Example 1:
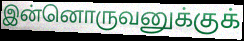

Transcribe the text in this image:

இன்னொருவனுக்குக்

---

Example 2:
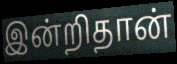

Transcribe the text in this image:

இன்றிதான்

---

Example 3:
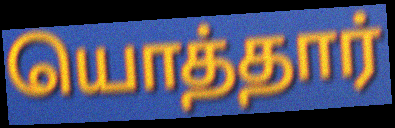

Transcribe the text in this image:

யொத்தார்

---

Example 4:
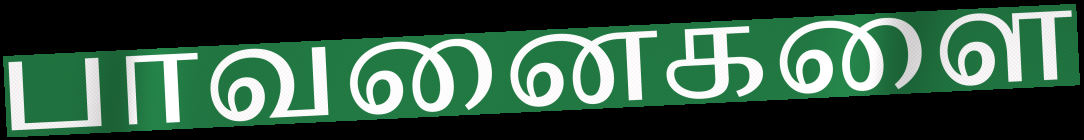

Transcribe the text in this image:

பாவனைகளை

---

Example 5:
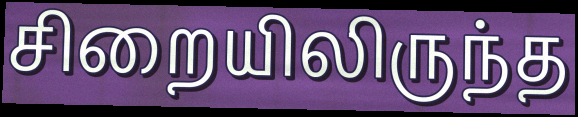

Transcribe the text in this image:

சிறையிலிருந்த